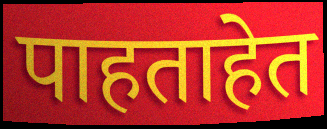
पाहताहेत